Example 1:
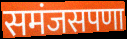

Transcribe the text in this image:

समंजसपणा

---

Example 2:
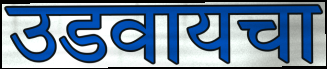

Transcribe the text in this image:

उडवायचा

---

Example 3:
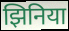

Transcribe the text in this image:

झिनिया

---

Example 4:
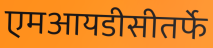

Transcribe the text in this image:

एमआयडीसीतर्फे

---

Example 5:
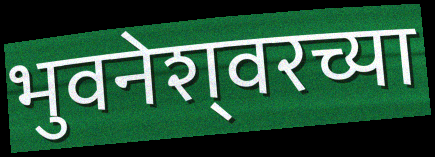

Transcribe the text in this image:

भुवनेश्वरच्या